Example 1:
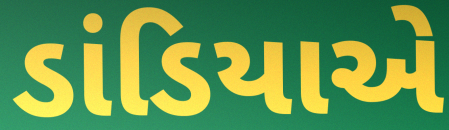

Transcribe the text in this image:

ડાંડિયાએ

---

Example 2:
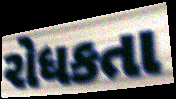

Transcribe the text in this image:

રોધકતા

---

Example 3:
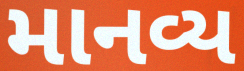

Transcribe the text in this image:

માનવ્ય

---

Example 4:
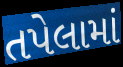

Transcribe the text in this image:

તપેલામાં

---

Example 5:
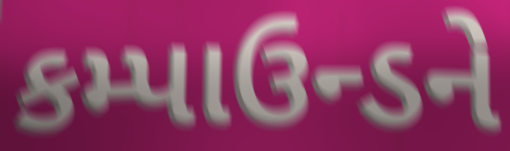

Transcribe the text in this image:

કમ્પાઉન્ડને